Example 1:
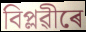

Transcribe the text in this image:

বিপ্লৱীৰে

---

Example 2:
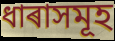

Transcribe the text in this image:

ধাৰাসমূহ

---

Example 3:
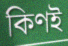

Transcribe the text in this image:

কিণই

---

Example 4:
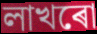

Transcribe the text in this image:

লাখৰো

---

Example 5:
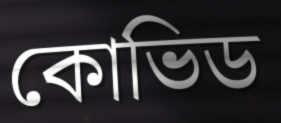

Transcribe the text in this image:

কোভিড